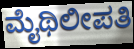
ಮೈಥಿಲೀಪತಿ